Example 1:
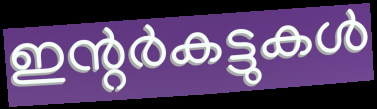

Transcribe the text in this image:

ഇന്റർകട്ടുകൾ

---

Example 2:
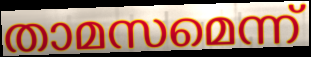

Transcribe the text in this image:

താമസമെന്ന്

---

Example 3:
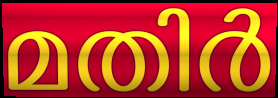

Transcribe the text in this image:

മതിർ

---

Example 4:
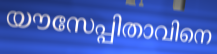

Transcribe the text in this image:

യൗസേപ്പിതാവിനെ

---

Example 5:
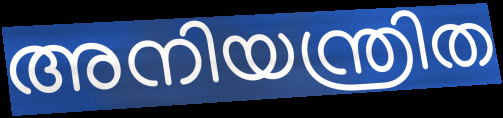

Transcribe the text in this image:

അനിയന്ത്രിത